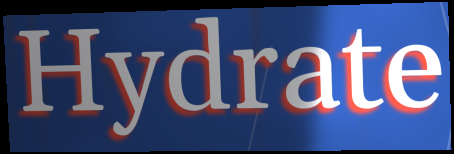
Hydrate